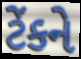
ટેંકને